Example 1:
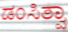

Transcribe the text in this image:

ಡಂಸಿತ್ವಾ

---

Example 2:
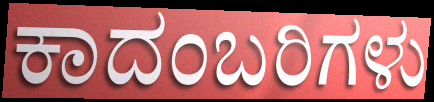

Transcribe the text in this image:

ಕಾದಂಬರಿಗಳು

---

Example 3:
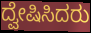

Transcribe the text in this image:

ದ್ವೇಷಿಸಿದರು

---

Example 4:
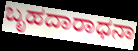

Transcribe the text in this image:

ಬೃಹದಾರಾಧನಾ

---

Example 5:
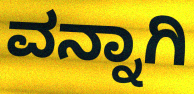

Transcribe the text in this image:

ವನ್ನಾಗಿ